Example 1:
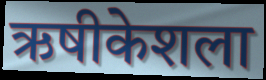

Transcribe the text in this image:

ऋषीकेशला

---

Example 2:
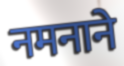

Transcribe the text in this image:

नमनाने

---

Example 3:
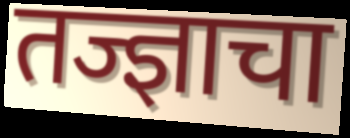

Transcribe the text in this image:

तज्ज्ञाचा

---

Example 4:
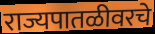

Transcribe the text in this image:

राज्यपातळीवरचे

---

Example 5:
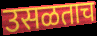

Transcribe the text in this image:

उसळताच